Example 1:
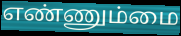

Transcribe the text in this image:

எண்ணும்மை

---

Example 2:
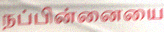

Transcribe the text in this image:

நப்பின்னையை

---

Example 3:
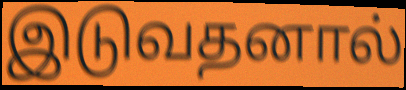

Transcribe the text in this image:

இடுவதனால்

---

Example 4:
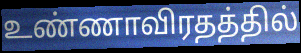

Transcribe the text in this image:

உண்ணாவிரதத்தில்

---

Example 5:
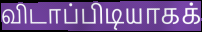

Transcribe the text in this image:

விடாப்பிடியாகக்